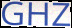
GHZ